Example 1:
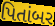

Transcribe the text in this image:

પિતાંબર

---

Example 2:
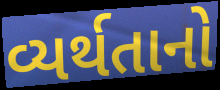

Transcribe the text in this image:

વ્યર્થતાનો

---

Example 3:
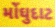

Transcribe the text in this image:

મોંઘુદાટ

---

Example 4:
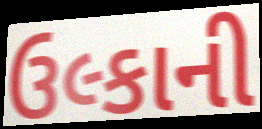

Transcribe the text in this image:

ઉલ્કાની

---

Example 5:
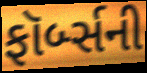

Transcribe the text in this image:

ફૉર્બ્સની